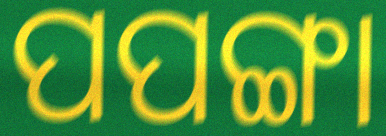
ପପଙ୍ଗା